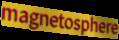
magnetosphere